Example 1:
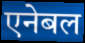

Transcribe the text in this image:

एनेबल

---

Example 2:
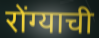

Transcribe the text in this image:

रोंग्याची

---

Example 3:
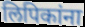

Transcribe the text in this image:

लिपिकांना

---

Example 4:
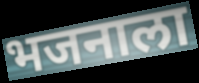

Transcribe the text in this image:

भजनाला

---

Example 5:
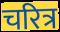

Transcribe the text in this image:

चरित्र